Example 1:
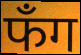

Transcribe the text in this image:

फँग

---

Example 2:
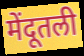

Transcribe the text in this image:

मेंदूतली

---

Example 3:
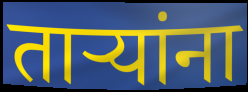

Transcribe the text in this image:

ताऱ्यांना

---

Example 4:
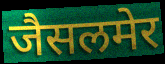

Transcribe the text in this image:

जैसलमेर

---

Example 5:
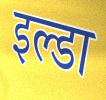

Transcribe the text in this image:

इल्डा